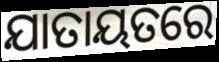
ଯାତାୟତରେ